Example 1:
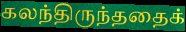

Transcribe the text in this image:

கலந்திருந்ததைக்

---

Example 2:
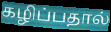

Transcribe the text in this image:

கழிப்பதால்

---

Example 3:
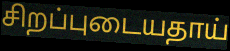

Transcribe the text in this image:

சிறப்புடையதாய்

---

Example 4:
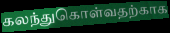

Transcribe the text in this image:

கலந்துகொள்வதற்காக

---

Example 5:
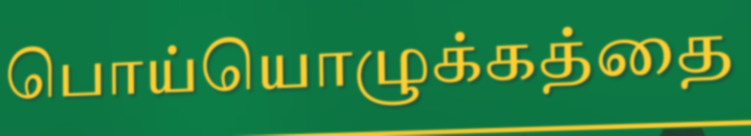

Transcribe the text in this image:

பொய்யொழுக்கத்தை